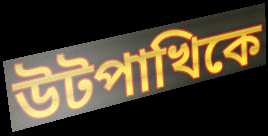
উটপাখিকে